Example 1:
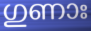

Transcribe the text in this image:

ഗുണാഃ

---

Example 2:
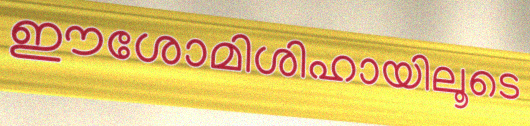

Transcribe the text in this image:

ഈശോമിശിഹായിലൂടെ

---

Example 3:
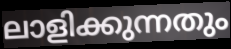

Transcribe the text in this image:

ലാളിക്കുന്നതും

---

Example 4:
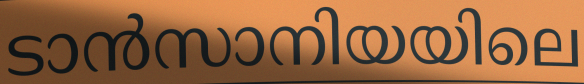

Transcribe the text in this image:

ടാൻസാനിയയിലെ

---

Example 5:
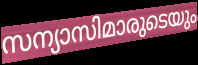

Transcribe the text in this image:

സന്യാസിമാരുടെയും